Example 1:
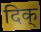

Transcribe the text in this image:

दिक्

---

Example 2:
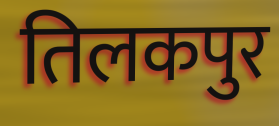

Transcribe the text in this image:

तिलकपुर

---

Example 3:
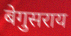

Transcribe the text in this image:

बेगुसराय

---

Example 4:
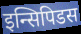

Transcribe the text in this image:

इन्सिपिडस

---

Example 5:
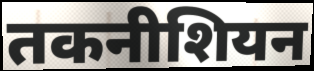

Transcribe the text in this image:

तकनीशियन